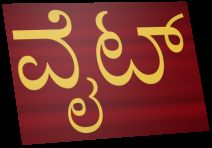
ವೈಟ್